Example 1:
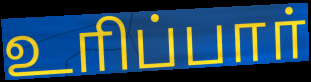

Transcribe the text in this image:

உரிப்பார்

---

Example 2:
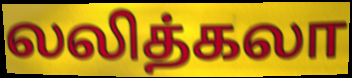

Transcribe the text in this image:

லலித்கலா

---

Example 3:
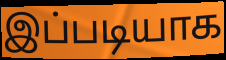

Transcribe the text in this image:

இப்படியாக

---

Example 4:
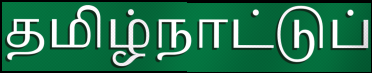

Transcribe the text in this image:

தமிழ்நாட்டுப்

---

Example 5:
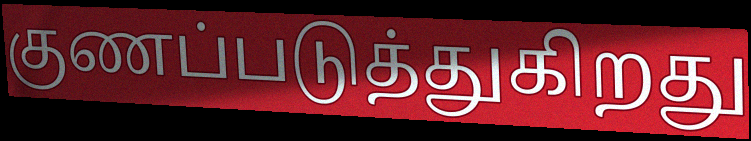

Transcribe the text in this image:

குணப்படுத்துகிறது